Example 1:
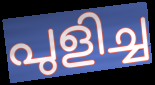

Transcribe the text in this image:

പുളിച്ച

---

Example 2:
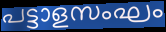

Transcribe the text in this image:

പട്ടാളസംഘം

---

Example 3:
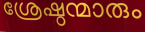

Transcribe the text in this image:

ശ്രേഷ്ഠന്മാരും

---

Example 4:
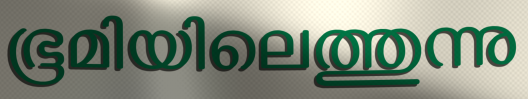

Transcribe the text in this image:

ഭൂമിയിലെത്തുന്നു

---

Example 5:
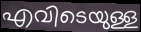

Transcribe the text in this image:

എവിടെയുള്ള